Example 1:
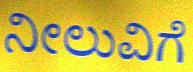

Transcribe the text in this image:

ನೀಲುವಿಗೆ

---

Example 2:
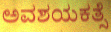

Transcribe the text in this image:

ಅವಶಯಕತ್ಸೆ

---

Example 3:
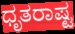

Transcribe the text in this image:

ಧೃತರಾಷ್ಟ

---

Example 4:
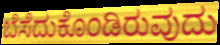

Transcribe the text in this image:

ಬೆಸೆದುಕೊಂಡಿರುವುದು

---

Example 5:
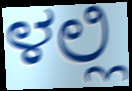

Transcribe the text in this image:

ಳಲ್ಲಿ